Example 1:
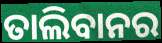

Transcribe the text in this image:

ତାଲିବାନର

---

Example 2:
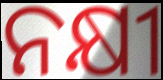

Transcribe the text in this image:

ନକ୍ଷୀ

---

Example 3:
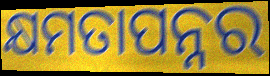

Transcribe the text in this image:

କ୍ଷମତାପନ୍ନର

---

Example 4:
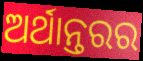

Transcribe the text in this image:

ଅର୍ଥାନ୍ତରର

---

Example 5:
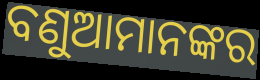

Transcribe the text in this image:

ବଣୁଆମାନଙ୍କର